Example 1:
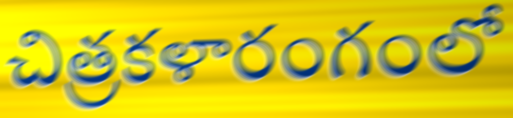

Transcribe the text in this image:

చిత్రకళారంగంలో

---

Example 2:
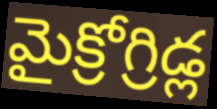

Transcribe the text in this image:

మైక్రోగ్రిడ్ల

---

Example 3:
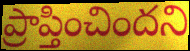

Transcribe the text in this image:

ప్రాప్తించిందని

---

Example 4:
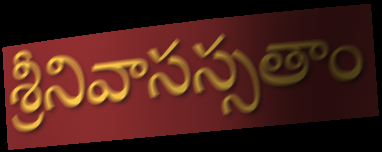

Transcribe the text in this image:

శ్రీనివాసస్సతాం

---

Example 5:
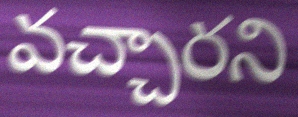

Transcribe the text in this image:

వచ్చారని